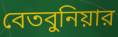
বেতবুনিয়ার